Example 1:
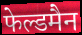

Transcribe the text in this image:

फेल्डमैन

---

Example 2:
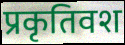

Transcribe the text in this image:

प्रकृतिवश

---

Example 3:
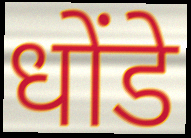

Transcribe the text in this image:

धोंडे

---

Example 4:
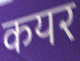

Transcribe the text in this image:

कयर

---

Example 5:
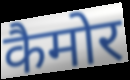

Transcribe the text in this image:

कैमोर